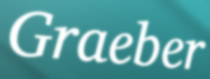
Graeber